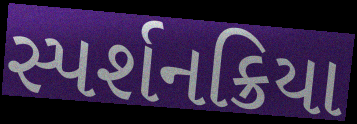
સ્પર્શનક્રિયા